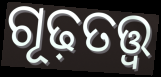
ଗୂଢ଼ତତ୍ତ୍ୱ